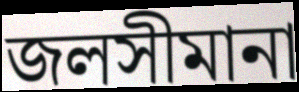
জলসীমানা